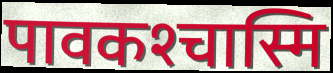
पावकश्चास्मि